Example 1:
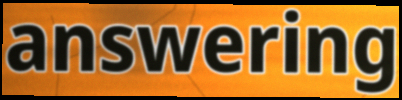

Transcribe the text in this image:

answering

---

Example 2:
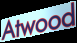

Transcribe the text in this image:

Atwood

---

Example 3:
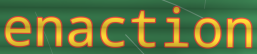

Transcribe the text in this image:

enaction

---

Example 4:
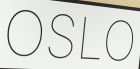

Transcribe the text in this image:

OSLO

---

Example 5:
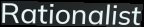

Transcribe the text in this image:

Rationalist